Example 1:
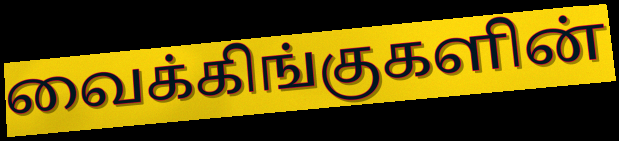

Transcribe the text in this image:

வைக்கிங்குகளின்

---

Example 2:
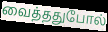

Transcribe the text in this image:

வைத்ததுபோல்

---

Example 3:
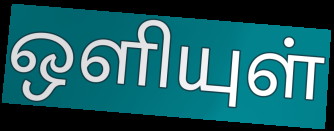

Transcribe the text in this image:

ஒளியுள்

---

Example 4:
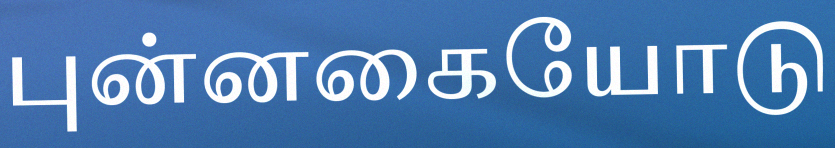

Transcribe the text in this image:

புன்னகையோடு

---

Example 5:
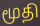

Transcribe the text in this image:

மூதி